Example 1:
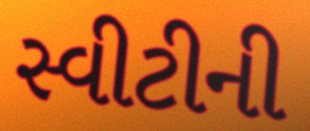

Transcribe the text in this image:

સ્વીટીની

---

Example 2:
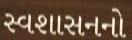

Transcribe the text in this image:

સ્વશાસનનો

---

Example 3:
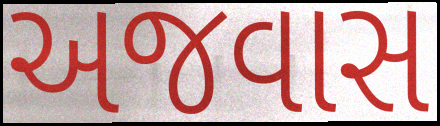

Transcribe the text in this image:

અજવાસ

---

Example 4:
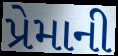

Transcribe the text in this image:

પ્રેમાની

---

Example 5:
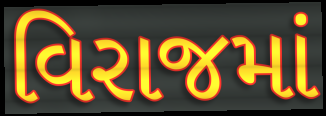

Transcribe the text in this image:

વિરાજમાં